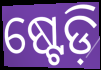
ଷ୍ଟେଡ଼ି